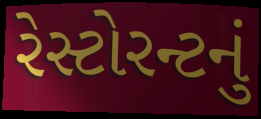
રેસ્ટોરન્ટનું